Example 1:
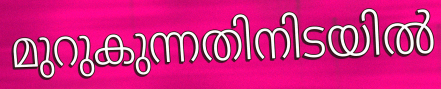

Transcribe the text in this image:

മുറുകുന്നതിനിടയിൽ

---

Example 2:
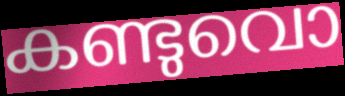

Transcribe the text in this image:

കണ്ടുവൊ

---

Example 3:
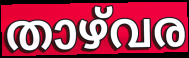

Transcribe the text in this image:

താഴ്‌വര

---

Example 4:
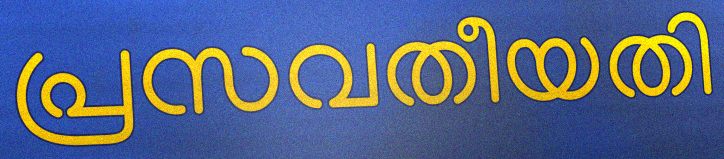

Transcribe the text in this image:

പ്രസവതീയതി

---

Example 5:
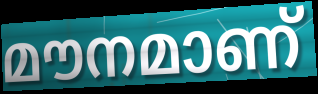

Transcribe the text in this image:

മൗനമാണ്